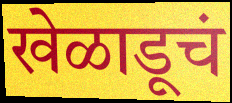
खेळाडूचं